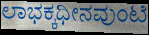
ಲಾಭಕ್ಕಧೀನವುಂಟೆ